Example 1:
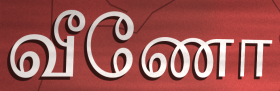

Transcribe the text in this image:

வீணோ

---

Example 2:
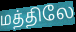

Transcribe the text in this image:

மத்திலே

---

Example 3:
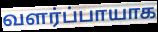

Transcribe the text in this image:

வளர்ப்பாயாக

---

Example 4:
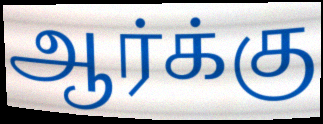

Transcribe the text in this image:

ஆர்க்கு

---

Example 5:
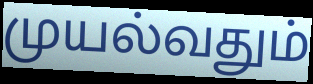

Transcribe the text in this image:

முயல்வதும்